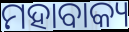
ମହାବାକ୍ୟ